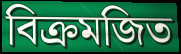
বিক্রমজিত